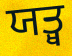
ਯਤ੍ਥ